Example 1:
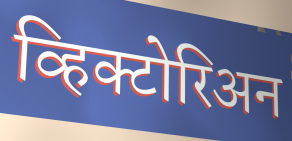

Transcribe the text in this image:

व्हिक्टोरिअन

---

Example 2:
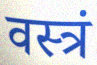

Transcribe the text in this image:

वस्त्रं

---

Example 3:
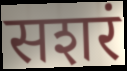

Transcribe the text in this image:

सशरं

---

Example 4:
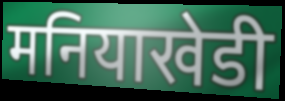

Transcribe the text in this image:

मनियाखेडी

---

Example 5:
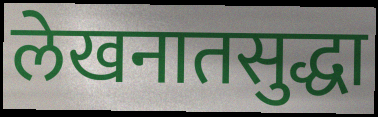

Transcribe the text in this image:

लेखनातसुद्धा